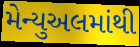
મેન્યુઅલમાંથી